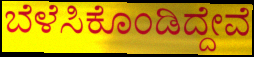
ಬೆಳೆಸಿಕೊಂಡಿದ್ದೇವೆ